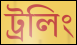
ট্রলিং